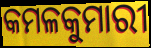
କମଳକୁମାରୀ